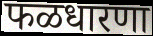
फळधारणा